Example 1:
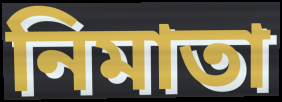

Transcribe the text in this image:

নিমাতা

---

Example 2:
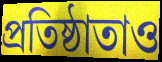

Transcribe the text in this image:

প্রতিষ্ঠাতাও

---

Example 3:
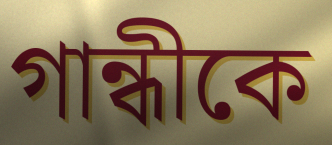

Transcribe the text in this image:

গান্ধীকে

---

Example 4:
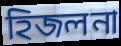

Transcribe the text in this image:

হিজলনা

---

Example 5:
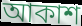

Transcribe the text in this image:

আকাশ